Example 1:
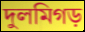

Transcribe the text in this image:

দুলমিগড়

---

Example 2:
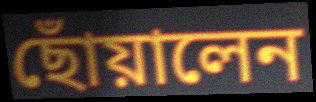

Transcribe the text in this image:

ছোঁয়ালেন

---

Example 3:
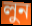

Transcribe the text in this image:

লুন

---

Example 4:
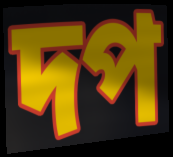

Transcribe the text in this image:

দপ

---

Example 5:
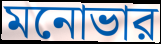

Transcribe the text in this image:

মনোভার